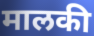
मालकी